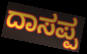
ದಾಸಪ್ಪ